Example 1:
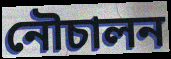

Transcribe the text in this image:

নৌচালন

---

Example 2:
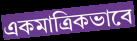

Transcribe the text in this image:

একমাত্রিকভাবে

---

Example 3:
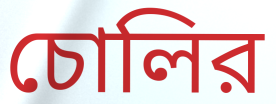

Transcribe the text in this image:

চোলির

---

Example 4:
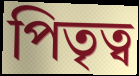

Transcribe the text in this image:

পিতৃত্ব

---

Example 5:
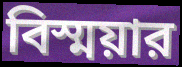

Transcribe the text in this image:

বিস্ময়ার